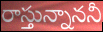
రాస్తున్నాననీ